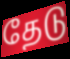
தேடு